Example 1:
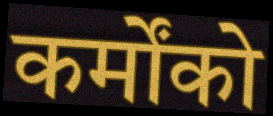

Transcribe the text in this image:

कर्मोंको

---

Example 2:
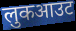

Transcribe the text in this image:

लुकआउट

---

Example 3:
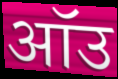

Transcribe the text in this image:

ऑउ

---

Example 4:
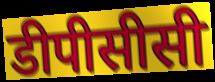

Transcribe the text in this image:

डीपीसीसी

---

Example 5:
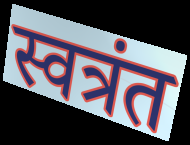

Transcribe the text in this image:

स्वत्रंत